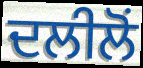
ਦਲੀਲੋਂ